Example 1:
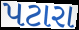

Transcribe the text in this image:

પટારા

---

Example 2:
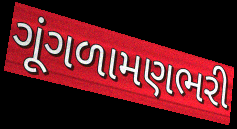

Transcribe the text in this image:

ગૂંગળામણભરી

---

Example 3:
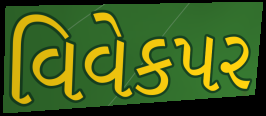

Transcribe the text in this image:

વિવેકપર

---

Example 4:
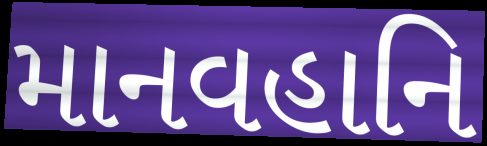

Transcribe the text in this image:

માનવહાનિ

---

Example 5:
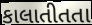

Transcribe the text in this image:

કાલાતીતતા